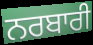
ਨਰਬਾਰੀ